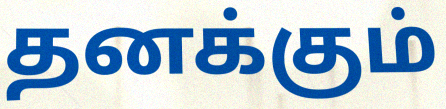
தனக்கும்